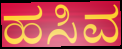
ಹಸಿವ